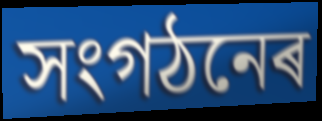
সংগঠনেৰ